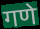
गणे